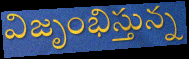
విజృంభిస్తున్న